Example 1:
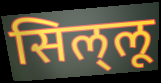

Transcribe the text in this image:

सिल्लू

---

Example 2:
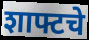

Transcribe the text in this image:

शाफ्टचे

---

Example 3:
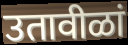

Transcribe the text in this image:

उतावीळां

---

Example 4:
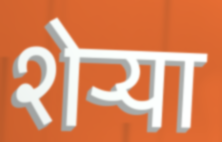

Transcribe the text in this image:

शेऱ्या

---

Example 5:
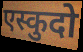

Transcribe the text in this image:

एस्कुदो